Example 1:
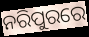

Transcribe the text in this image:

ନରିପୁରରେ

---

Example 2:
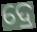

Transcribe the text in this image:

ଦ୍ରେ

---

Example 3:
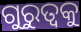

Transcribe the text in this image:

ଗୁରୁତ୍ବକୁ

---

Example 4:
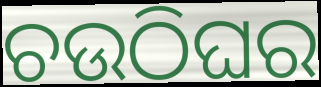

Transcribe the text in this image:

ଚଉଠିଘର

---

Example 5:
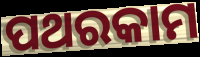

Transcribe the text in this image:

ପଥରକାମ